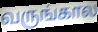
வருங்கால